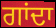
ਗਾਂਦਾ